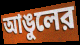
আঙুলের